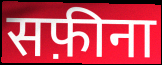
सफ़ीना